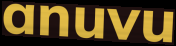
anuvu